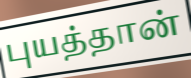
புயத்தான்